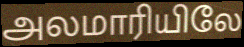
அலமாரியிலே